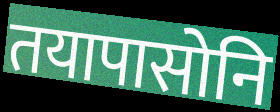
तयापासोनि